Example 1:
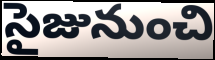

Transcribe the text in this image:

సైజునుంచి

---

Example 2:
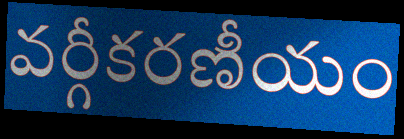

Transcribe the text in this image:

వర్గీకరణీయం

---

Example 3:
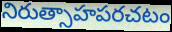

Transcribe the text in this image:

నిరుత్సాహపరచటం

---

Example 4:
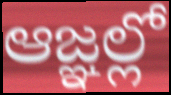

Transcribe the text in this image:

ఆజ్ఞల్లో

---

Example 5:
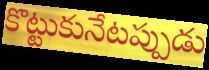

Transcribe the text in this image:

కొట్టుకునేటప్పుడు